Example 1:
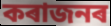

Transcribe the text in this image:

কৰাজনৰ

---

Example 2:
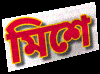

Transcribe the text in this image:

মিশে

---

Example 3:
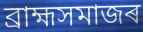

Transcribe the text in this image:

ব্ৰাহ্মসমাজৰ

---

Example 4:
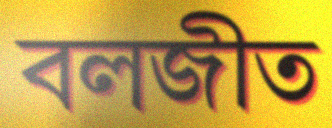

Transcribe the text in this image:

বলজীত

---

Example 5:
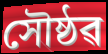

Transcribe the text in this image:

সৌষ্ঠৱ